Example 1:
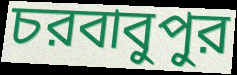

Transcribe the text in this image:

চরবাবুপুর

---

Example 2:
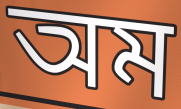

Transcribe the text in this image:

অম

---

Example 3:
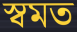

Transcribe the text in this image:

স্বমত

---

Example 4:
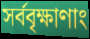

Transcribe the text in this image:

সর্ববৃক্ষাণাং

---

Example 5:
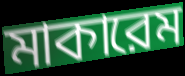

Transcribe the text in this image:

মাকারেম